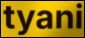
tyani